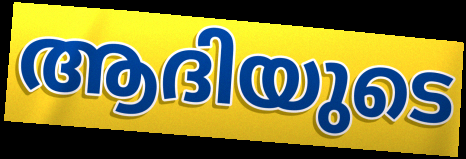
ആദിയുടെ